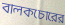
বালকচোরের